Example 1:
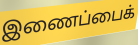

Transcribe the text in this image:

இணைப்பைக்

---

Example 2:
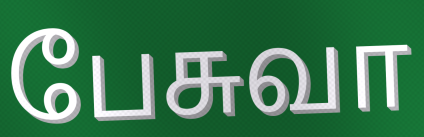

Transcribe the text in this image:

பேசுவா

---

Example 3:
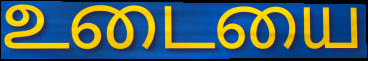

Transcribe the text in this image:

உடையை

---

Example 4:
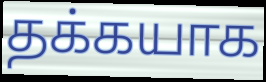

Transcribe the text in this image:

தக்கயாக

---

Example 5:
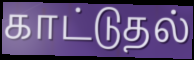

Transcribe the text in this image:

காட்டுதல்